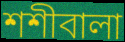
শশীবালা